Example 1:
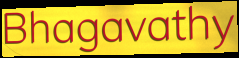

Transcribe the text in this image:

Bhagavathy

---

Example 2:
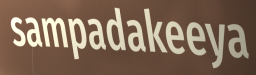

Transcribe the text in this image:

sampadakeeya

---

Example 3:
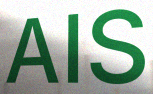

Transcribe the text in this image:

AIS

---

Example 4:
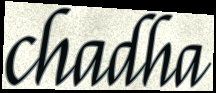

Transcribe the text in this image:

chadha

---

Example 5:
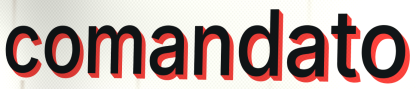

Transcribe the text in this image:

comandato